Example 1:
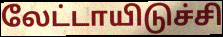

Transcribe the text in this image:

லேட்டாயிடுச்சி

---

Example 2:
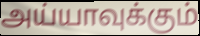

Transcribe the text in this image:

அய்யாவுக்கும்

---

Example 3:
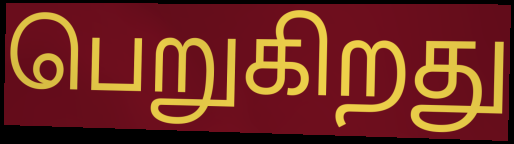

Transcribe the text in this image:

பெறுகிறது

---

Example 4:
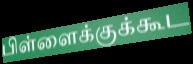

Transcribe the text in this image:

பிள்ளைக்குக்கூட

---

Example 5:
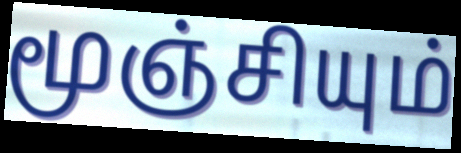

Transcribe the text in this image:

மூஞ்சியும்